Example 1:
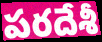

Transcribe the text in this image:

పరదేశీ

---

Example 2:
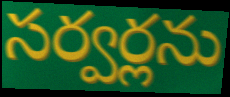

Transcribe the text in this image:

సర్వర్లను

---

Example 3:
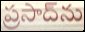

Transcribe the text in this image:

ప్రసాద్‌ను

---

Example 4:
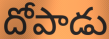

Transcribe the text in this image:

దోపాడు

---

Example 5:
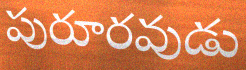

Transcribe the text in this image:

పురూరవుడు